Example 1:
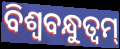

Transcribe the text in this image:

ବିଶ୍ଵବନ୍ଧୁତ୍ଵମ୍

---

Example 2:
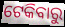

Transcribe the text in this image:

ଟେକିବାରୁ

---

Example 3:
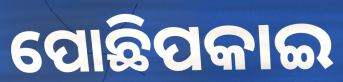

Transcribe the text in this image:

ପୋଛିପକାଇ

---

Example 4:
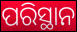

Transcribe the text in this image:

ପରିସ୍ଥାନ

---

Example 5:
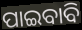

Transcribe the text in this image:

ପାଇବାବି